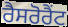
ਰੈਸਰੋਰੈਂਟ